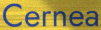
Cernea